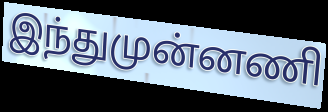
இந்துமுன்னணி